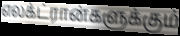
எலக்ட்ரான்களுக்கும்